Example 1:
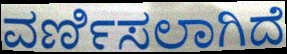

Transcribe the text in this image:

ವರ್ಣಿಸಲಾಗಿದೆ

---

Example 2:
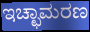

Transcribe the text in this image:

ಇಚ್ಛಾಮರಣ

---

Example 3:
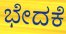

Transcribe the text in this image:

ಭೇದಕೆ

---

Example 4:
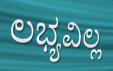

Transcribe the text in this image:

ಲಭ್ಯವಿಲ್ಲ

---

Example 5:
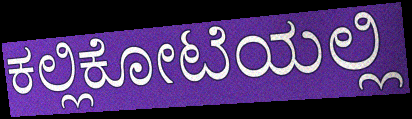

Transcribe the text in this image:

ಕಲ್ಲಿಕೋಟೆಯಲ್ಲಿ